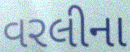
વરલીના